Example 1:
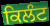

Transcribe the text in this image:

ਕਿਲੰਟ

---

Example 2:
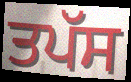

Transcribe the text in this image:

ਤਪੱਸ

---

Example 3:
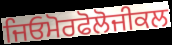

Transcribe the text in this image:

ਜਿਓਮੋਰਫੋਲੋਜੀਕਲ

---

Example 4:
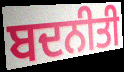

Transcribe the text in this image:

ਬਦਨੀਤੀ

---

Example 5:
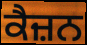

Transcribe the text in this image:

ਕੈਜ਼ਨ